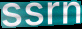
ssrn